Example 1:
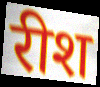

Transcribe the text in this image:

रीश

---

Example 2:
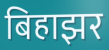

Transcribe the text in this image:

बिहाझर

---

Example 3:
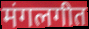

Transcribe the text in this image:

मंगलगीत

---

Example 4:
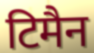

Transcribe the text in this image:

टिमैन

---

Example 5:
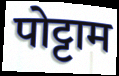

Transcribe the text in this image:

पोट्टाम